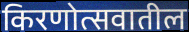
किरणोत्सवातील